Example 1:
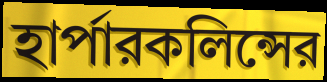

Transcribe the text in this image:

হার্পারকলিন্সের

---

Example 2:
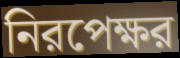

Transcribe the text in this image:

নিরপেক্ষর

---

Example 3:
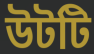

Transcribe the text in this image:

উটটি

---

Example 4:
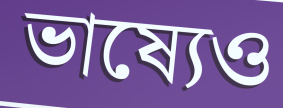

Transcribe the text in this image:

ভাষ্যেও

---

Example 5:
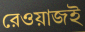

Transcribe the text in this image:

রেওয়াজই